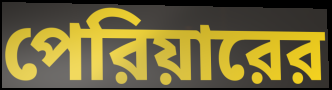
পেরিয়ারের